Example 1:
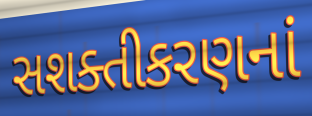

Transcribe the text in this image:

સશક્તીકરણનાં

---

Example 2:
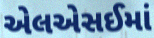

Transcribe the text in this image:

એલએસઈમાં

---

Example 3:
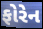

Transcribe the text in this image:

ફોરેન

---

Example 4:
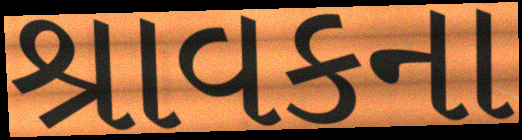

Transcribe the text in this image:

શ્રાવકના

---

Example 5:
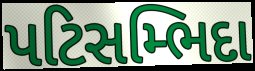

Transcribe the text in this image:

પટિસમ્ભિદા